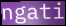
ngati